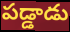
పడ్డాడు